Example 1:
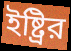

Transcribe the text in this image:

ইষ্ট্রির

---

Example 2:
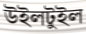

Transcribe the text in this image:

উইলটুইল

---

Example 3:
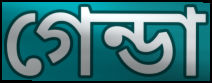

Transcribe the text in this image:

গেন্ডা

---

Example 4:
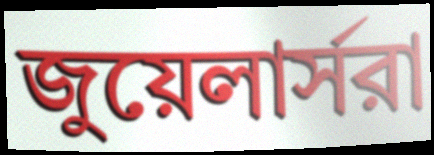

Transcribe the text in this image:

জুয়েলার্সরা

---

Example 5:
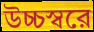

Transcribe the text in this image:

উচ্চস্বরে